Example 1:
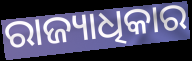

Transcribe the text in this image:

ରାଜ୍ୟାଧିକାର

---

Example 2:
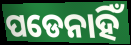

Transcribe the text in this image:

ପଡେନାହିଁ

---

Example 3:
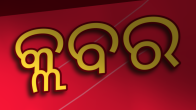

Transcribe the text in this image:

କ୍ଲବର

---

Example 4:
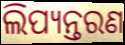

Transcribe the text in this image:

ଲିପ୍ୟନ୍ତରଣ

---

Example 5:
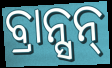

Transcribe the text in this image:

ବ୍ରାନ୍ସନ୍